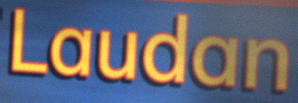
Laudan